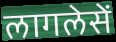
लागलेसें